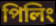
পিলিং